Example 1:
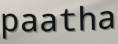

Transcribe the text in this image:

paatha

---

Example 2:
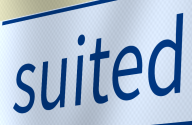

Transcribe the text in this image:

suited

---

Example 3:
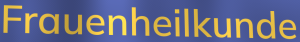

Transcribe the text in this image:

Frauenheilkunde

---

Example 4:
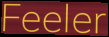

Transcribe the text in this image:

Feeler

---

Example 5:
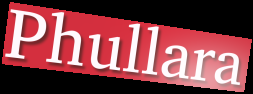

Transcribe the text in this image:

Phullara